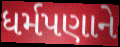
ધર્મપણાને